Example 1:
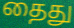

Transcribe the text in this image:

தைது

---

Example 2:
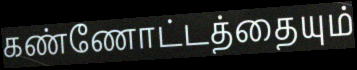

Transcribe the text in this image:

கண்ணோட்டத்தையும்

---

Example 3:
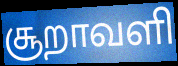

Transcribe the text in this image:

சூறாவளி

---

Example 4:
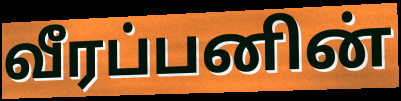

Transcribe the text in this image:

வீரப்பனின்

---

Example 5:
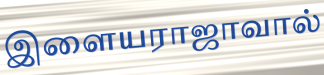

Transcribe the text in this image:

இளையராஜாவால்